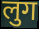
लुग